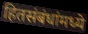
हितसंबंधांमध्ये